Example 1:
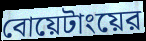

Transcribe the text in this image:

বোয়েটাংয়ের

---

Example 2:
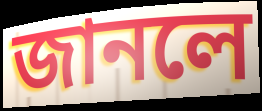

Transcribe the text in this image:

জানলে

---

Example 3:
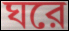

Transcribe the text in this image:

ঘরে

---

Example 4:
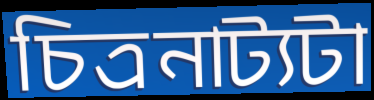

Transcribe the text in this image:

চিত্রনাট্যটা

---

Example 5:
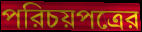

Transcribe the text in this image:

পরিচয়পত্রের